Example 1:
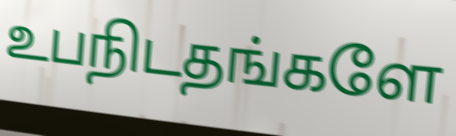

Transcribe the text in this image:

உபநிடதங்களே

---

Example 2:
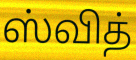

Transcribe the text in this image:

ஸ்வித்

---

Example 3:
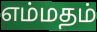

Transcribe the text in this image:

எம்மதம்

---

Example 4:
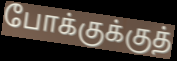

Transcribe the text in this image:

போக்குக்குத்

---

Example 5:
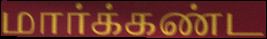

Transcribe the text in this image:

மார்க்கண்ட